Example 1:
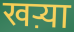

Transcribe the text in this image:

खऱ्‍या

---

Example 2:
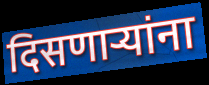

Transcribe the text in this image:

दिसणाऱ्यांना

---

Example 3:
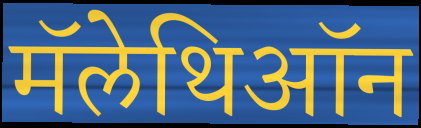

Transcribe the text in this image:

मॅलेथिऑन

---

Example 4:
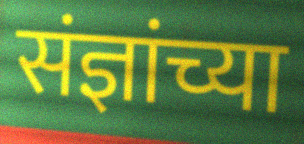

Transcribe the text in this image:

संज्ञांच्या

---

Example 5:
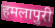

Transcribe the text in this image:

हमलापुरी